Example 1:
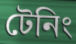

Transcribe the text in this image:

টেনিং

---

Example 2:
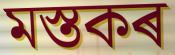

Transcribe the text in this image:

মস্তকৰ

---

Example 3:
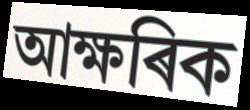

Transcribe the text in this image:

আক্ষৰিক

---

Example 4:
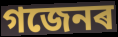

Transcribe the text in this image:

গজেনৰ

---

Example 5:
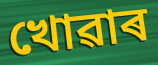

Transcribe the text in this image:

খোৱাৰ